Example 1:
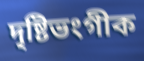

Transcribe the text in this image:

দৃষ্টিভংগীক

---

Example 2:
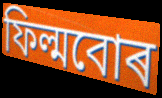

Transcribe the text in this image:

ফিল্মবোৰ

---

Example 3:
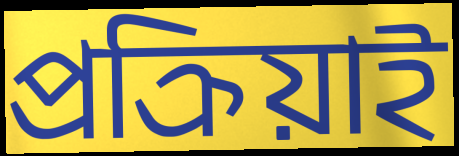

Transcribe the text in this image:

প্ৰক্ৰিয়াই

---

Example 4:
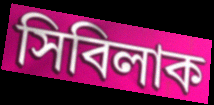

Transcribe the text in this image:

সিবিলাক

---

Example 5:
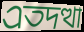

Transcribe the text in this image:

এতদত্থা